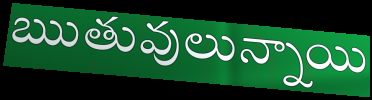
ఋతువులున్నాయి